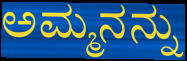
ಅಮ್ಮನನ್ನು